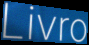
Livro